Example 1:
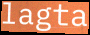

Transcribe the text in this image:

lagta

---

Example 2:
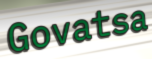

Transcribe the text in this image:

Govatsa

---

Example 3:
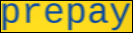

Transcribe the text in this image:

prepay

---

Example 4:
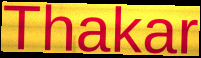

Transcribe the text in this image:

Thakar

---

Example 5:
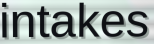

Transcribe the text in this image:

intakes